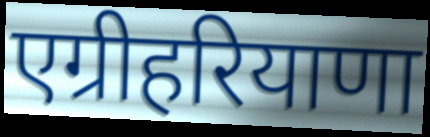
एग्रीहरियाणा